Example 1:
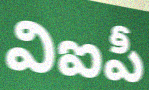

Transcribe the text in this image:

విఐపీ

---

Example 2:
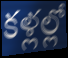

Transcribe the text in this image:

కళ్లల్లో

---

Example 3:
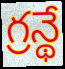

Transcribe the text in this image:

గ్రన్థే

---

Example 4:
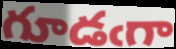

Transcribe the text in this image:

గూడఁగా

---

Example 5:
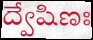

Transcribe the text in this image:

ద్వేషిణః